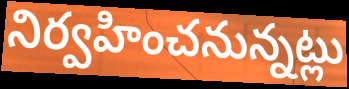
నిర్వహించనున్నట్లు